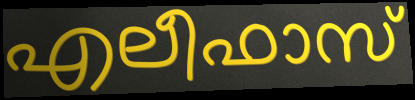
എലീഫാസ്